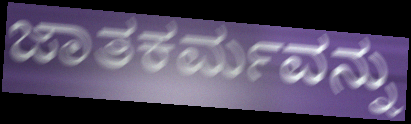
ಜಾತಕರ್ಮವನ್ನು